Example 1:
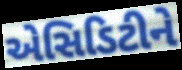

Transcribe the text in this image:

એસિડિટીને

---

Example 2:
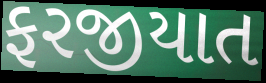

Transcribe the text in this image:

ફરજીયાત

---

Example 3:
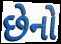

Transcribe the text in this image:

છેનો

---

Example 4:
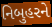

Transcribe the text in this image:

નિબુહરને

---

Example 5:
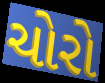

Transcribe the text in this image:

ચોરો